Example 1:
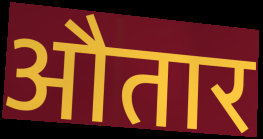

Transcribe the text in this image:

औतार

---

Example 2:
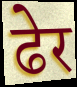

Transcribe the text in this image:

ढेर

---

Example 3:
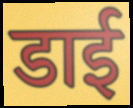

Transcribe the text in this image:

डाई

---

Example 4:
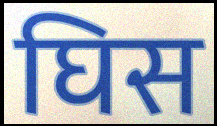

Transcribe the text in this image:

घिस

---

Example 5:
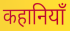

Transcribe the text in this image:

कहानियाँ